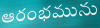
ఆరంభమును